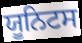
ਯੂਨਿਟਸ